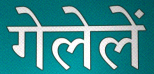
गेलेलें